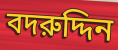
বদরুদ্দিন